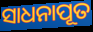
ସାଧନାପୂତ